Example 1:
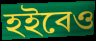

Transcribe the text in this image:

হইবেও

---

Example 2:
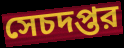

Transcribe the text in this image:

সেচদপ্তর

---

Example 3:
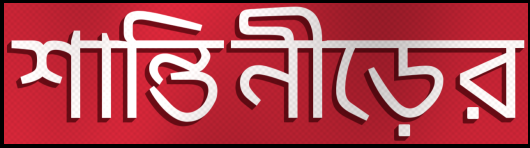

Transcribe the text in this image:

শান্তিনীড়ের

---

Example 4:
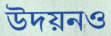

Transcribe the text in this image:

উদয়নও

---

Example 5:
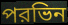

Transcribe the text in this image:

পরভিন